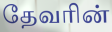
தேவரின்